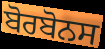
ਬੋਰਬੋਨਸ